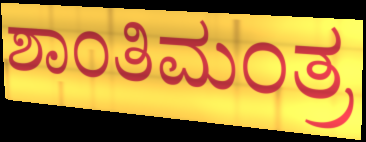
ಶಾಂತಿಮಂತ್ರ